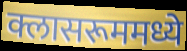
क्लासरूममध्ये